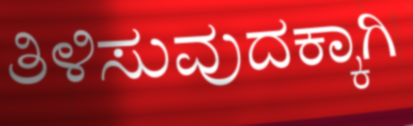
ತಿಳಿಸುವುದಕ್ಕಾಗಿ